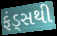
ફંડ્સથી